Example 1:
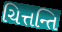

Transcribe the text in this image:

ચિત્તન્તિ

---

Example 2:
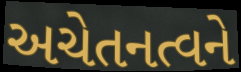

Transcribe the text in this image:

અચેતનત્વને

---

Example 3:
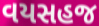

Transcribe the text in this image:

વયસહજ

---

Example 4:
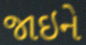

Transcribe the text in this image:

જાઇને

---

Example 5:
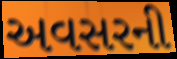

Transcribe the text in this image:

અવસરની